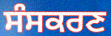
ਸੰਸਕਰਣ